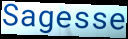
Sagesse